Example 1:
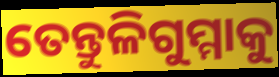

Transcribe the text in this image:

ତେନ୍ତୁଳିଗୁମ୍ମାକୁ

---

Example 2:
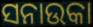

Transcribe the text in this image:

ସନାଉକା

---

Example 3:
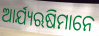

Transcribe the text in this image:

ଆର୍ଯ୍ୟଋଷିମାନେ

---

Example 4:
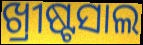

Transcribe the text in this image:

ଖ୍ରୀଷ୍ଟସାଲ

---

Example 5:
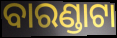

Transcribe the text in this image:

ବାରଣ୍ଡାଟା